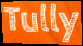
Tully